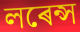
লৰেন্স